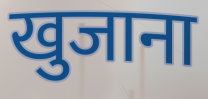
खुजाना